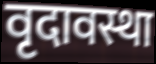
वृदावस्था